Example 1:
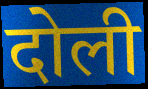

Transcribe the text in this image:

दोली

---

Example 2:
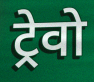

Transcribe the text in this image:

ट्रेवो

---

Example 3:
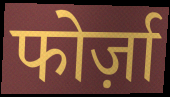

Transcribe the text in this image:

फोर्ज़ा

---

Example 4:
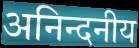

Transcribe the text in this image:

अनिन्दनीय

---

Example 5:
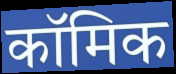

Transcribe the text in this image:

कॉमिक